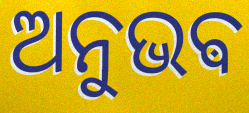
ଅନୁଭଵ